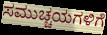
ಸಮುಚ್ಚಯಗಳಿಗೆ